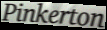
Pinkerton